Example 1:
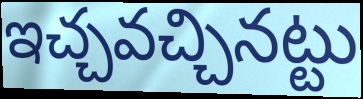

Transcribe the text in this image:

ఇచ్చవచ్చినట్టు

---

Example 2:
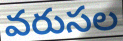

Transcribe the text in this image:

వరుసల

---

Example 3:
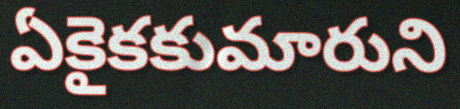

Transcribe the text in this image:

ఏకైకకుమారుని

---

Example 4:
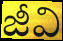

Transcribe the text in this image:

జీవి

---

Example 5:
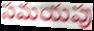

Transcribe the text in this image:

సమయపు